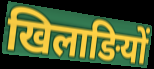
खिलाङियों